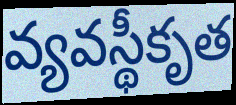
వ్యవస్థీకృత